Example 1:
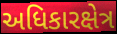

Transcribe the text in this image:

અધિકારક્ષેત્ર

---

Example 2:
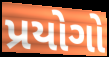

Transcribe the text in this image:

પ્રયોગો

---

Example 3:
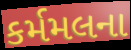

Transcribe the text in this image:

કર્મમલના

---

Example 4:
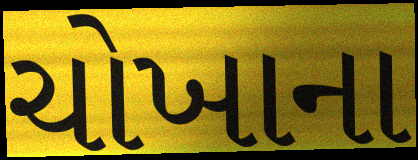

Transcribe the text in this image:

ચોખાના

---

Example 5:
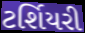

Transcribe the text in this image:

ટર્શિયરી